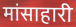
मांसाहारी